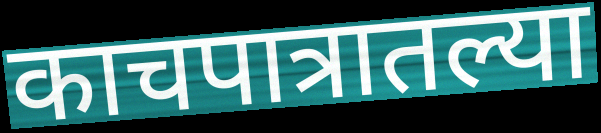
काचपात्रातल्या